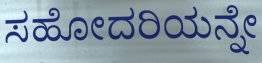
ಸಹೋದರಿಯನ್ನೇ